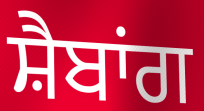
ਸ਼ੈਬਾਂਗ